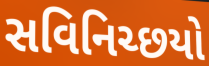
સવિનિચ્છયો